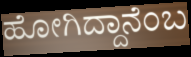
ಹೋಗಿದ್ದಾನೆಂಬ